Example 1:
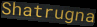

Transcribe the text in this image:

Shatrugna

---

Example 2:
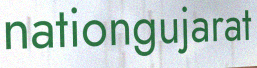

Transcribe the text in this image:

nationgujarat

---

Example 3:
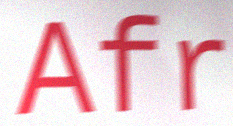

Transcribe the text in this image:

Afr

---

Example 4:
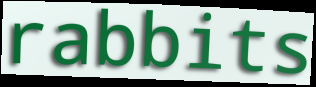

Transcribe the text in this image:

rabbits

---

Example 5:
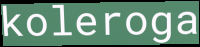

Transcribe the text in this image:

koleroga